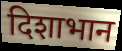
दिशाभान